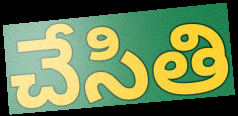
చేసితి